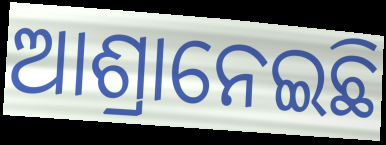
ଆଶ୍ରାନେଇଛି